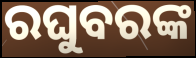
ରଘୁବରଙ୍କ